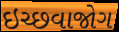
ઇચ્છવાજોગ